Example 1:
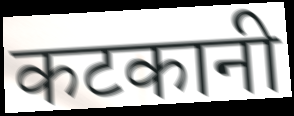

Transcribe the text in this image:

कटकानी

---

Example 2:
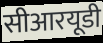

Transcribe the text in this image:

सीआरयूडी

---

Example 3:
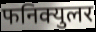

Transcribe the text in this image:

फनिक्युलर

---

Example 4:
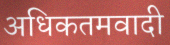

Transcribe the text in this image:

अधिकतमवादी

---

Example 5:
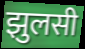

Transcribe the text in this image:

झुलसी